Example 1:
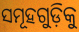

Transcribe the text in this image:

ସମୂହଗୁଡ଼ିକୁ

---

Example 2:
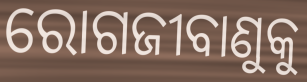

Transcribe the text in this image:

ରୋଗଜୀବାଣୁକୁ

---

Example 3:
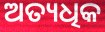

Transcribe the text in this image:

ଅତ୍ୟଧିକ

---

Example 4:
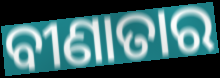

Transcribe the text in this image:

ବୀଣାତାର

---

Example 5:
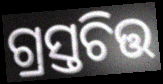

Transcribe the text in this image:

ଗ୍ରସ୍ତଚିତ୍ତ